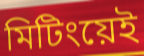
মিটিংয়েই